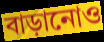
বাড়ানোও